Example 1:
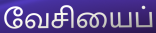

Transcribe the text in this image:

வேசியைப்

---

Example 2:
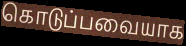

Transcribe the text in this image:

கொடுப்பவையாக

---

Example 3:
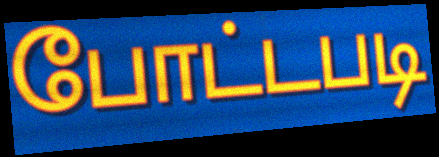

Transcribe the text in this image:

போட்டபடி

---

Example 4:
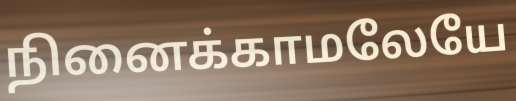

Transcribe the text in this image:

நினைக்காமலேயே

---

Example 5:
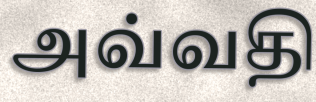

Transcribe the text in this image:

அவ்வதி